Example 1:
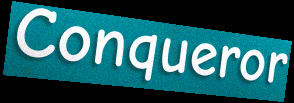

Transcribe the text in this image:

Conqueror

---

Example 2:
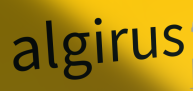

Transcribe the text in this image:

algirus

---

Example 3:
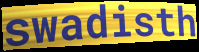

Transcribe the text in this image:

swadisth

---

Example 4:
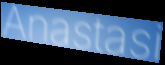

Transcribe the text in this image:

Anastasi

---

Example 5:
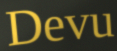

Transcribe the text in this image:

Devu